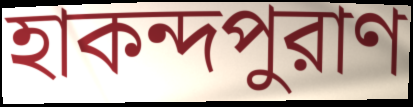
হাকন্দপুরাণ